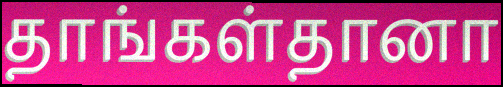
தாங்கள்தானா